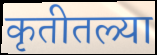
कृतीतल्या